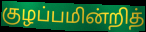
குழப்பமின்றித்